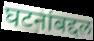
घटनांबद्दल